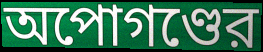
অপোগণ্ডের